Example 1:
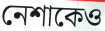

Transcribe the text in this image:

নেশাকেও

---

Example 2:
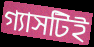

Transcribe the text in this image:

গ্যাসটিই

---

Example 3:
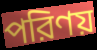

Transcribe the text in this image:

পরিণয়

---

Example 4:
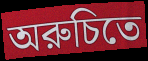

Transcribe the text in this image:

অরুচিতে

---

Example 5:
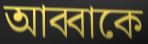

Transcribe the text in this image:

আব্বাকে